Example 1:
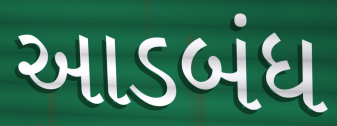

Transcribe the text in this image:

આડબંધ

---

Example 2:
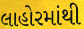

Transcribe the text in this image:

લાહોરમાંથી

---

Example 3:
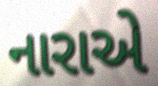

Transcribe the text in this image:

નારાએ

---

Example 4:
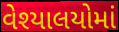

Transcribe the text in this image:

વેશ્યાલયોમાં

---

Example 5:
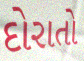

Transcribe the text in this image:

દોરાતો